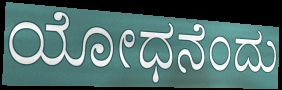
ಯೋಧನೆಂದು